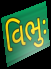
વિભુઃ